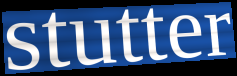
stutter